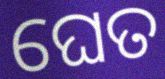
ଘେତ